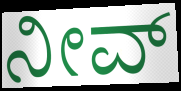
ನೀವ್